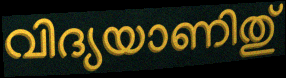
വിദ്യയാണിതു്